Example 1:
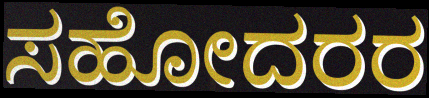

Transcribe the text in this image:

ಸಹೋದರರ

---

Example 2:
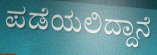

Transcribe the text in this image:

ಪಡೆಯಲಿದ್ದಾನೆ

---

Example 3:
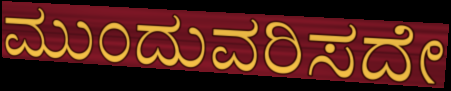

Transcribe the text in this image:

ಮುಂದುವರಿಸದೇ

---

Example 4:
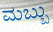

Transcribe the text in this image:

ಮಬ್ಬು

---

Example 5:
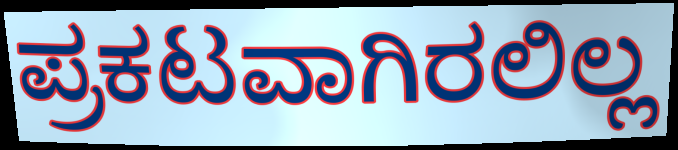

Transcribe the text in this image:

ಪ್ರಕಟವಾಗಿರಲಿಲ್ಲ